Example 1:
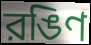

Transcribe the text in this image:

রঙিণ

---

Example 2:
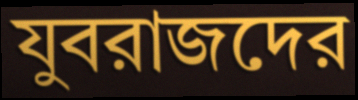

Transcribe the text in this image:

যুবরাজদের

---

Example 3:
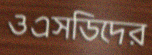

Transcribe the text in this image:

ওএসডিদের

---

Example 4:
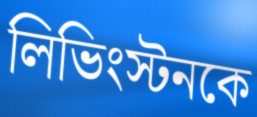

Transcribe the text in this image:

লিভিংস্টনকে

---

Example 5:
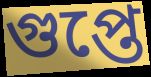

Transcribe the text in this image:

গুপ্তে